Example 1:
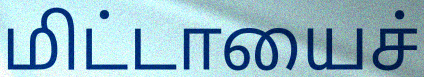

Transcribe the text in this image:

மிட்டாயைச்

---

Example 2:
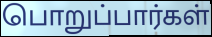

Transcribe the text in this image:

பொறுப்பார்கள்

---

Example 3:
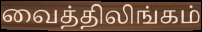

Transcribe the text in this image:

வைத்திலிங்கம்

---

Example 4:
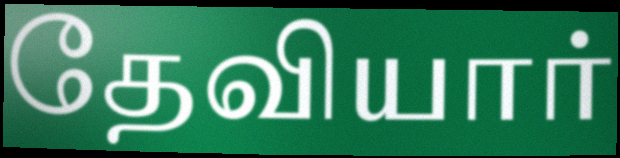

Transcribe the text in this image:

தேவியார்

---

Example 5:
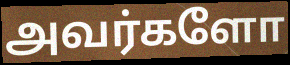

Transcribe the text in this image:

அவர்களோ